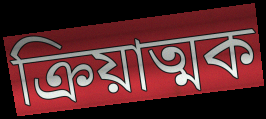
ক্ৰিয়াত্মক